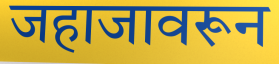
जहाजावरून